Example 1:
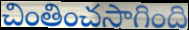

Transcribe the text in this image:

చింతించసాగింది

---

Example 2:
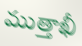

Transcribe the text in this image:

ముత్తాఖీ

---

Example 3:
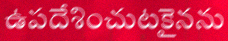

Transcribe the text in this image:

ఉపదేశించుటకైనను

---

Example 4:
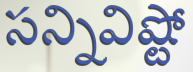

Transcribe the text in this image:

సన్నివిష్టో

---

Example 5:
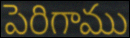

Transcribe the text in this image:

పెరిగాము